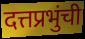
दत्तप्रभुंची